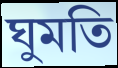
ঘুমতি